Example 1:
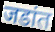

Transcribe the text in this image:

जडांत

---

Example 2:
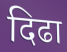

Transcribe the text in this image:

दिढा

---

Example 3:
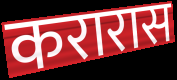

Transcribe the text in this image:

करारास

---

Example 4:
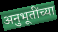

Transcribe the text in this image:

अनुभूतींच्या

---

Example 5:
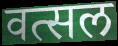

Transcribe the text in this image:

वत्सल